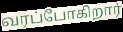
வரப்போகிறார்